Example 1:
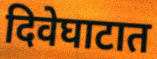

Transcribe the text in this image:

दिवेघाटात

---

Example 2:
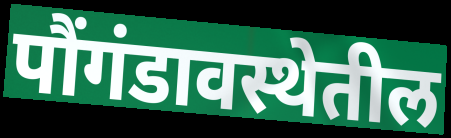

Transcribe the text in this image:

पौंगंडावस्थेतील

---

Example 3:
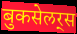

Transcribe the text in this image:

बुकसेलर्स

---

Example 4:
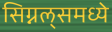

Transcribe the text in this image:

सिग्नल्समध्ये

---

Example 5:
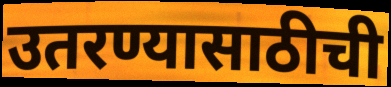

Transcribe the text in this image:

उतरण्यासाठीची